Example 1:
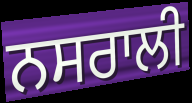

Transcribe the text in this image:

ਨਸਰਾਲੀ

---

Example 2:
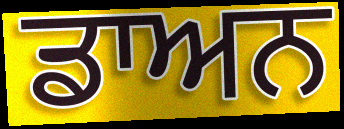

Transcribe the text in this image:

ਡਾਅਨ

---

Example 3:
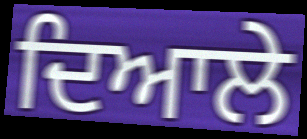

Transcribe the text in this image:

ਦਿਆਲੇ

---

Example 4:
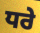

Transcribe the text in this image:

ਧਰੇ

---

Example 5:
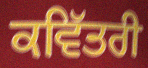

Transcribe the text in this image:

ਕਵਿੱਤਰੀ